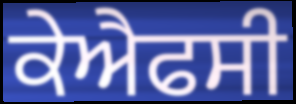
ਕੇਐਫਸੀ